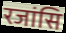
रजांसि